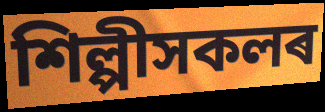
শিল্পীসকলৰ